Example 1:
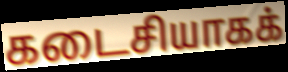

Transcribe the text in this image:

கடைசியாகக்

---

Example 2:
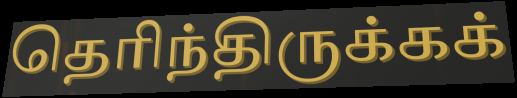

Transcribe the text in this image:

தெரிந்திருக்கக்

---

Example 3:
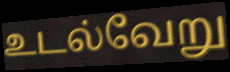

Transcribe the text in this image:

உடல்வேறு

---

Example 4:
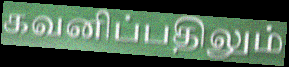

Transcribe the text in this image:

கவனிப்பதிலும்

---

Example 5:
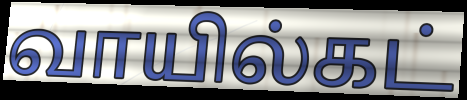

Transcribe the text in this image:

வாயில்கட்